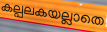
കല്പലകയല്ലാതെ